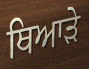
ਥਿਆੜੇ